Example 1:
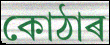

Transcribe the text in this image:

কোঠাৰ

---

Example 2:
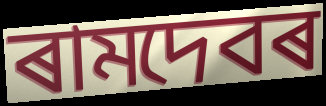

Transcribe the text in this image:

ৰামদেবৰ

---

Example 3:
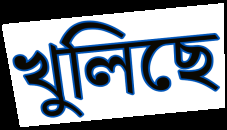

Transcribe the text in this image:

খুলিছে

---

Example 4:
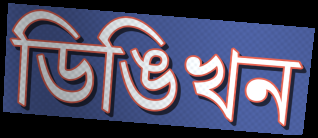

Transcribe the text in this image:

ডিঙিখন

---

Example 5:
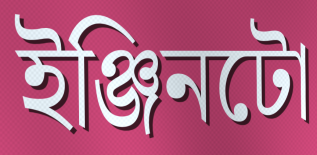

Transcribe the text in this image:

ইঞ্জিনটো